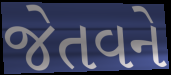
જેતવને